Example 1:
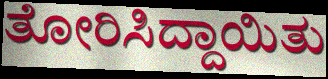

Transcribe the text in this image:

ತೋರಿಸಿದ್ದಾಯಿತು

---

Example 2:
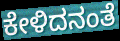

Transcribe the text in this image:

ಕೇಳಿದನಂತೆ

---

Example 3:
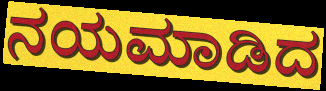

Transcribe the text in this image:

ನಯಮಾಡಿದ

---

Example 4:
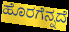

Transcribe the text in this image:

ಹೊರಗೆನ್ನದೆ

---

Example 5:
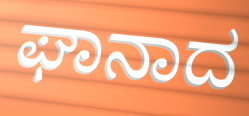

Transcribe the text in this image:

ಘಾನಾದ